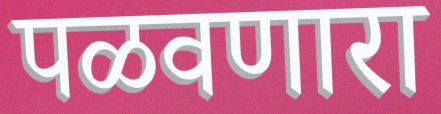
पळवणारा